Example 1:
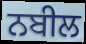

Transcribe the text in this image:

ਨਬੀਲ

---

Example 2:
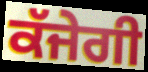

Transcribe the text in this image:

ਕੱਜੇਗੀ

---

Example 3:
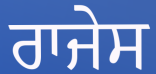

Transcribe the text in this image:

ਰਾਜੇਸ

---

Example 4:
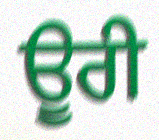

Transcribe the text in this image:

ਊਰੀ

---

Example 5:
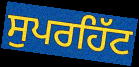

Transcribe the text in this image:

ਸੁਪਰਹਿੱਟ